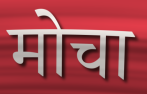
मोचा